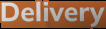
Delivery